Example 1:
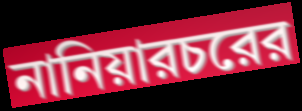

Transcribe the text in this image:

নানিয়ারচরের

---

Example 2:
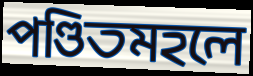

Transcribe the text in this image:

পণ্ডিতমহলে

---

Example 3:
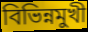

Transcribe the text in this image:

বিভিন্নমুখী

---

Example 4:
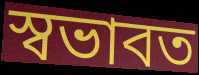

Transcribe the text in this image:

স্বভাবত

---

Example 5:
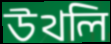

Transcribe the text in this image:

উথলি